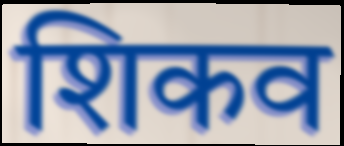
शिकव